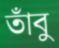
তাঁবু